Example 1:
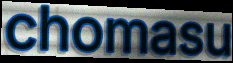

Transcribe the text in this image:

chomasu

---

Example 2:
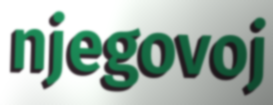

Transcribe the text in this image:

njegovoj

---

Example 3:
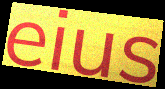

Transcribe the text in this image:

eius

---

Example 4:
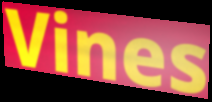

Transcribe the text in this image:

Vines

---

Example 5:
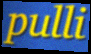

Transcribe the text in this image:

pulli